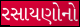
રસાયણોનો